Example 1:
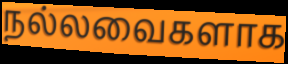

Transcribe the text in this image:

நல்லவைகளாக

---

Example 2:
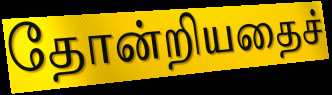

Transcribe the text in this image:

தோன்றியதைச்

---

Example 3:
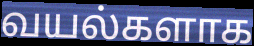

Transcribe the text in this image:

வயல்களாக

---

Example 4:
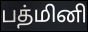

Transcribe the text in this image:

பத்மினி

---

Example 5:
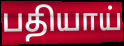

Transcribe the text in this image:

பதியாய்